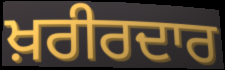
ਖ਼ਰੀਰਦਾਰ